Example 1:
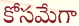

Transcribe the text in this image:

కోసమేగా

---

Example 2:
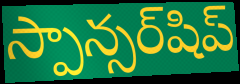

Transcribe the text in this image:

స్పాన్సర్‌షిప్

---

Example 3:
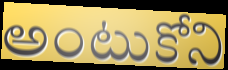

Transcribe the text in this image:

అంటుకోని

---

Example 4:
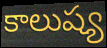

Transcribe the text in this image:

కాలుష్య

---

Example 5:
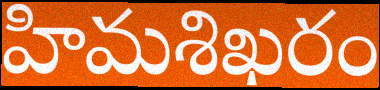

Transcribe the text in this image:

హిమశిఖరం